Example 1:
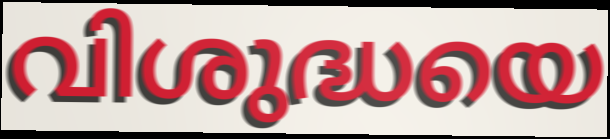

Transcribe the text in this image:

വിശുദ്ധയെ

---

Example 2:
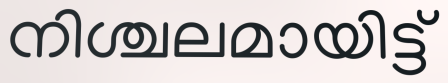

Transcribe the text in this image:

നിശ്ചലമായിട്ട്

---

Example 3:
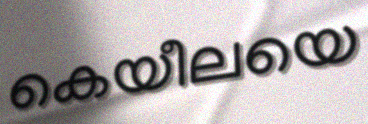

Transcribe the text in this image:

കെയീലയെ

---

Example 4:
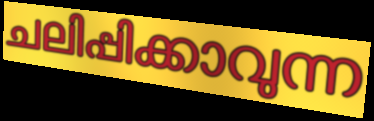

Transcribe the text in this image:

ചലിപ്പിക്കാവുന്ന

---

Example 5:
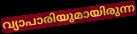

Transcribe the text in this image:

വ്യാപാരിയുമായിരുന്ന